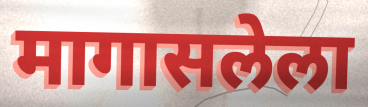
मागासलेला